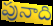
పునాది